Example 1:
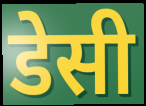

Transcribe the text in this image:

डेसी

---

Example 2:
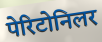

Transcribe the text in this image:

पेरिटोनिलर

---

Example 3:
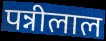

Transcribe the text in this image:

पन्नीलाल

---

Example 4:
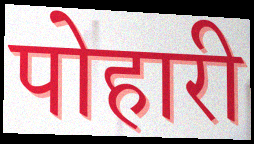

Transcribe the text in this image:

पोहारी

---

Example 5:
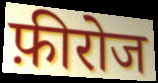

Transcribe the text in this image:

फ़ीरोज